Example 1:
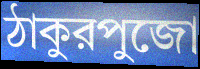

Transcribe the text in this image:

ঠাকুরপুজো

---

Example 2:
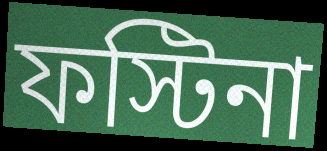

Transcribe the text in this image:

ফস্টিনা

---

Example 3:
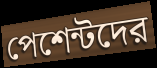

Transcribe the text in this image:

পেশেন্টদের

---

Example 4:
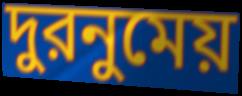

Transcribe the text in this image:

দুরনুমেয়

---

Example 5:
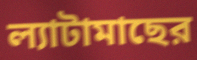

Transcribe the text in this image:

ল্যাটামাছের